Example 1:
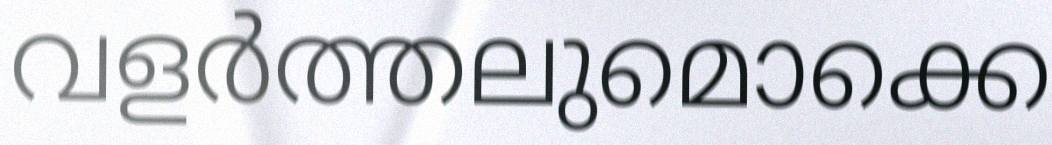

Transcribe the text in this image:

വളർത്തലുമൊക്കെ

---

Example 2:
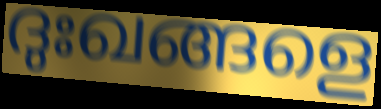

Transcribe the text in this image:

ദുഃഖങ്ങളെ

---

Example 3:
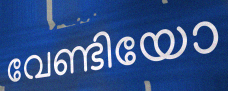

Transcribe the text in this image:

വേണ്ടിയോ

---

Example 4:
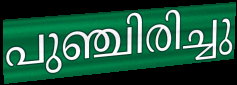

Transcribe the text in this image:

പുഞ്ചിരിച്ചു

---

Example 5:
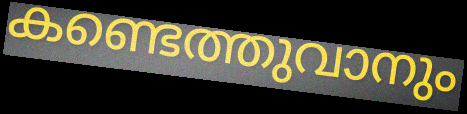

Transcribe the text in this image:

കണ്ടെത്തുവാനും